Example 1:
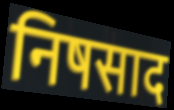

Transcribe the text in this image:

निषसाद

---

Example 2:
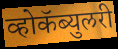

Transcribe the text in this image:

व्होकॅब्युलरी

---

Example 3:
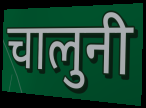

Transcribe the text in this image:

चालुनी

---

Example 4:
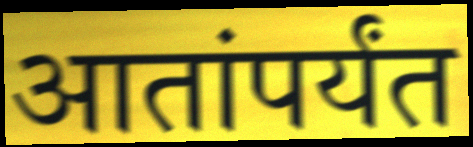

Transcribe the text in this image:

आतांपर्यंत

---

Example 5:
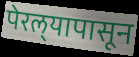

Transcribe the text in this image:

पेरल्यापासून